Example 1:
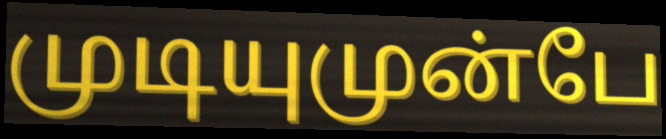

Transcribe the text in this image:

முடியுமுன்பே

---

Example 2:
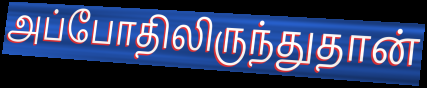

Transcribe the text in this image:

அப்போதிலிருந்துதான்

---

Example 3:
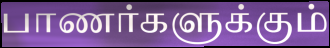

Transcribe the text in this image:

பாணர்களுக்கும்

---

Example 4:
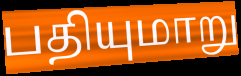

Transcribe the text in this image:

பதியுமாறு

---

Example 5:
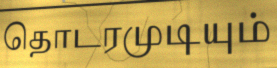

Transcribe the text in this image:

தொடரமுடியும்